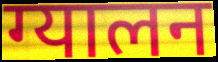
ग्यालन